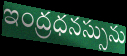
ఇంద్రధనస్సును